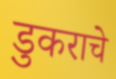
डुकराचे